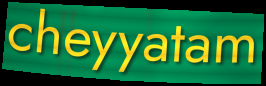
cheyyatam